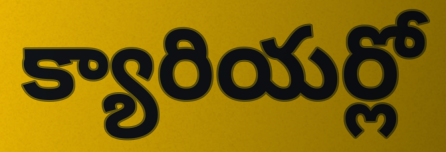
క్యారియర్లో